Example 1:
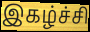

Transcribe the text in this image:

இகழ்ச்சி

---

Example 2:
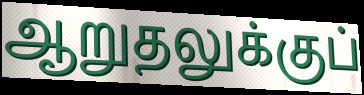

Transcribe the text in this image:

ஆறுதலுக்குப்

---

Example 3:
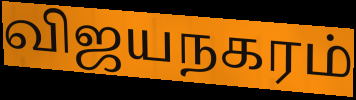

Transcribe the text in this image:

விஜயநகரம்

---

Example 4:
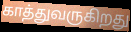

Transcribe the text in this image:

காத்துவருகிறது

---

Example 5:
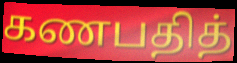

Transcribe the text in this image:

கணபதித்